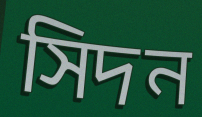
সিদন